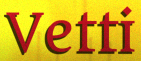
Vetti